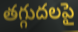
తగ్గుదలపై